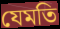
যেমতি